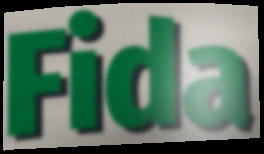
Fida